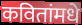
कवितांमधे